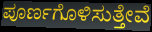
ಪೂರ್ಣಗೊಳಿಸುತ್ತೇವೆ